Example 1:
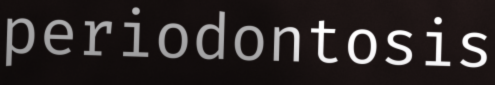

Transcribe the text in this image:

periodontosis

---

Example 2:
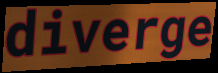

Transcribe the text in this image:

diverge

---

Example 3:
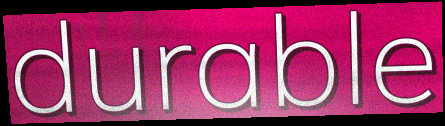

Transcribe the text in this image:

durable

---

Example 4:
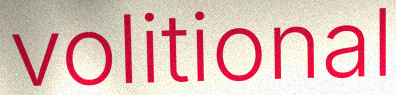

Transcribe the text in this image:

volitional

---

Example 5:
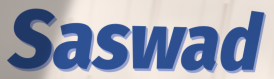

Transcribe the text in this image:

Saswad